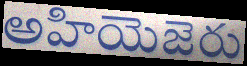
అహియెజెరు